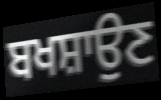
ਬਖਸ਼ਾਉਣ